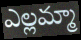
ఎల్లమ్మా